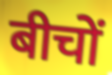
बीचों